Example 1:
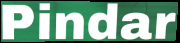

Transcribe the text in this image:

Pindar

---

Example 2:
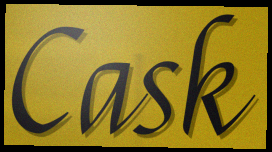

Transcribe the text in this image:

Cask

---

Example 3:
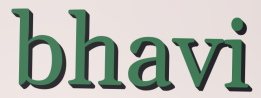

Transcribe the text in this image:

bhavi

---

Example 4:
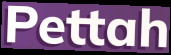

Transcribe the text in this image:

Pettah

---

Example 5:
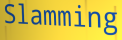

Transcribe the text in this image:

Slamming